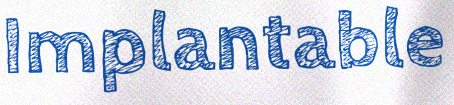
Implantable